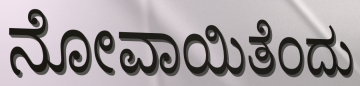
ನೋವಾಯಿತೆಂದು